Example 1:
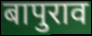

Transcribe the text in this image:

बापुराव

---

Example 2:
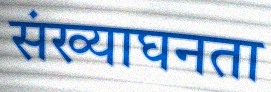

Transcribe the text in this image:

संख्याघनता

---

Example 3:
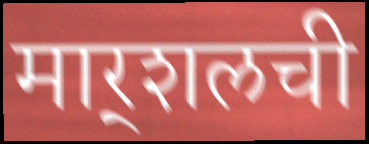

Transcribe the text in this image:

मार्शलची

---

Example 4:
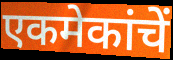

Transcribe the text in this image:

एकमेकांचें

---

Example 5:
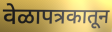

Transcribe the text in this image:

वेळापत्रकातून